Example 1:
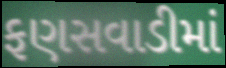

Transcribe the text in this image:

ફણસવાડીમાં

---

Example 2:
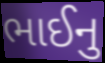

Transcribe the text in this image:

ભાઈનુ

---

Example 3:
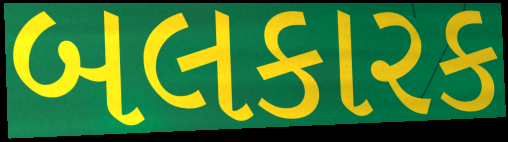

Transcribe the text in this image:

બલકારક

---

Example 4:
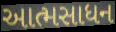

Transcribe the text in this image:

આત્મસાધન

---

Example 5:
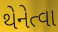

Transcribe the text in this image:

થેનેત્વા